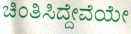
ಚಿಂತಿಸಿದ್ದೇವೆಯೇ